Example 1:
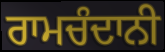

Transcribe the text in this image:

ਰਾਮਚੰਦਾਨੀ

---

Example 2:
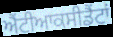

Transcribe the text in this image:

ਐਂਟੀਆਕਸੀਡੈਂਟਾਂ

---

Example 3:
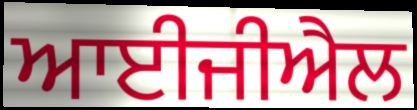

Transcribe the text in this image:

ਆਈਜੀਐਲ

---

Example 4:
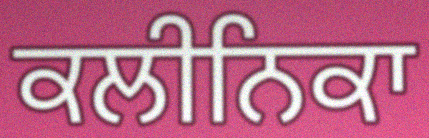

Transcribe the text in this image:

ਕਲੀਨਿਕਾ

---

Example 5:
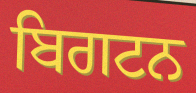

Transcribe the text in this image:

ਬਿਗਟਨ